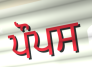
ਪੌਪਸ